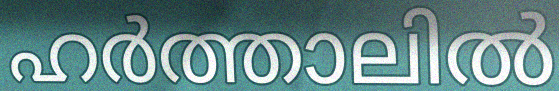
ഹർത്താലിൽ